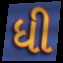
ધી